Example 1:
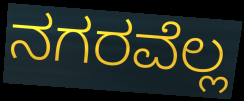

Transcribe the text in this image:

ನಗರವೆಲ್ಲ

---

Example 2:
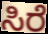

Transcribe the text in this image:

ಸಿರೆ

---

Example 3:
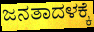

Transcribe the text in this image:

ಜನತಾದಳಕ್ಕೆ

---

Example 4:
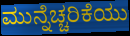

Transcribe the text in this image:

ಮುನ್ನೆಚ್ಚರಿಕೆಯು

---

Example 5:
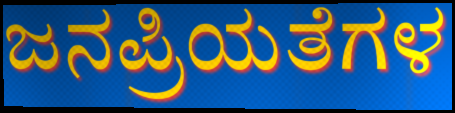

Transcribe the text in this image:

ಜನಪ್ರಿಯತೆಗಳ